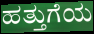
ಹತ್ತುಗೆಯ